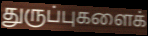
துருப்புகளைக்